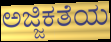
ಅಜ್ಜಿಕತೆಯ